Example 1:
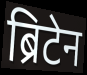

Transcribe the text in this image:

ब्रिटेन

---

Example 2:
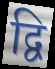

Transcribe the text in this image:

द्वि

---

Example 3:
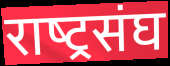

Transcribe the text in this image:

राष्ट्रसंघ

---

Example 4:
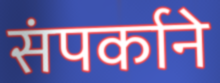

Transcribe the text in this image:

संपर्काने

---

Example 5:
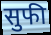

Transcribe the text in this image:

सुफी